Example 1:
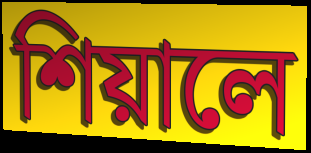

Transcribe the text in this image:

শিয়ালে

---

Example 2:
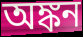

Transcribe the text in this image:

অঙ্কন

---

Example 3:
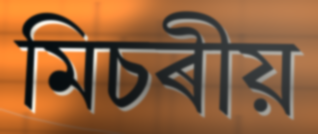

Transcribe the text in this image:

মিচৰীয়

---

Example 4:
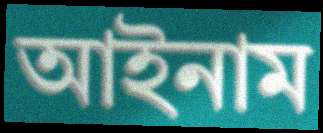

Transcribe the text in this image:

আইনাম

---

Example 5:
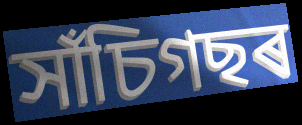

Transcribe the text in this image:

সাঁচিগছৰ